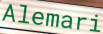
Alemari